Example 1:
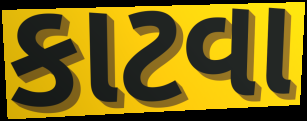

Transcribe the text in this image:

કાટવા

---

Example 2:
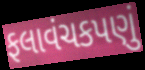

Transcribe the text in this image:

ફલાવંચકપણું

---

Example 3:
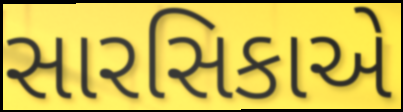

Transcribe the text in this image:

સારસિકાએ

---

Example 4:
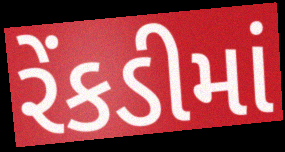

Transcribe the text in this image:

રેંકડીમાં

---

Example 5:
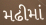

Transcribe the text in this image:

મઢીમાં